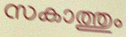
സകാത്തും